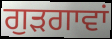
ਗੁੜਗਾਵਾਂ